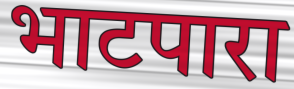
भाटपारा